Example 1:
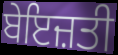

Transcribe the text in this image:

ਬੇਇਜ਼ਤੀ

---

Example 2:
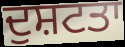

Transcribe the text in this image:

ਦੁਸ਼ਟਤਾ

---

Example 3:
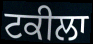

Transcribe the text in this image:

ਟਕੀਲਾ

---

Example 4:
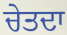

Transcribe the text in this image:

ਚੇਤਦਾ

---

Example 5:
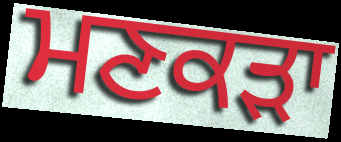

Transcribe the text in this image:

ਮਣਕੜਾ